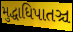
મુદ્ધાધિપાતઞ્ચ